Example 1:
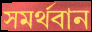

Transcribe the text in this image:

সমর্থবান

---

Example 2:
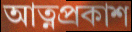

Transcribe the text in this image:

আত্নপ্রকাশ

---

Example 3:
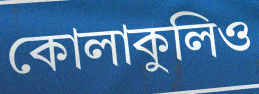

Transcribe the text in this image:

কোলাকুলিও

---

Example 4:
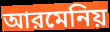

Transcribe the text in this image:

আরমেনিয়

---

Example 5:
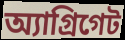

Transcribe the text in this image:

অ্যাগ্রিগেট